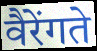
वैरेंगते